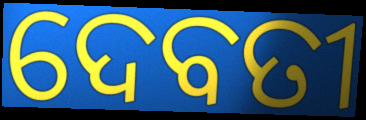
ଦେବତୀ